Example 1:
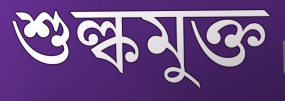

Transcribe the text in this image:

শুল্কমুক্ত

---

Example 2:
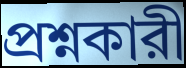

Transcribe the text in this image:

প্রশ্নকারী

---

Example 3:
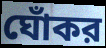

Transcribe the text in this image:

ঘোঁকর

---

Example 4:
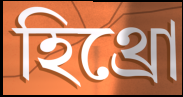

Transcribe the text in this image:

হিথ্রো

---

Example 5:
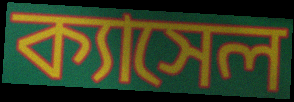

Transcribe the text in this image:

ক্যাসেল